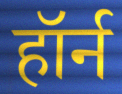
हॉर्न